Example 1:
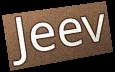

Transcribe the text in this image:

Jeev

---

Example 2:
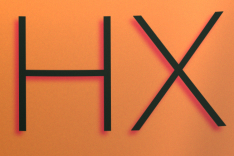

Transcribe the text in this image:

HX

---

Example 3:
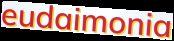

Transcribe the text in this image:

eudaimonia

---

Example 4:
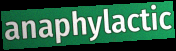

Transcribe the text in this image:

anaphylactic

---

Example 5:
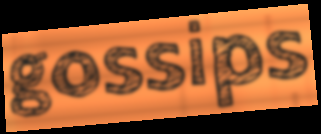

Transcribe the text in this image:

gossips